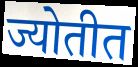
ज्योतीत